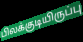
பிலக்குடியிருப்பு